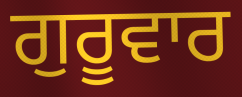
ਗੁਰੂਵਾਰ